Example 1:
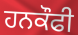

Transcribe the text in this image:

ਹਨਕੌਫੀ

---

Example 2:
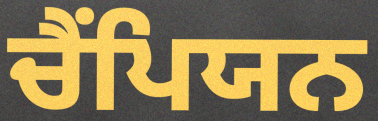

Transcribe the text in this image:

ਚੈੰਪਿਯਨ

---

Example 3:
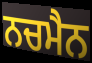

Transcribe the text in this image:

ਨਚਮੈਨ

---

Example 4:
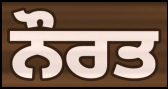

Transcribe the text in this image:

ਨੌਰਤ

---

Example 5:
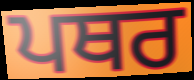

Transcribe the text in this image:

ਪਥਰ